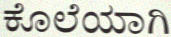
ಕೊಲೆಯಾಗಿ